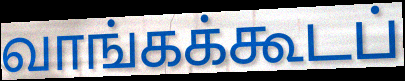
வாங்கக்கூடப்